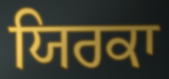
ਯਿਰਕਾ